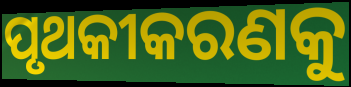
ପୃଥକୀକରଣକୁ